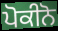
ਪੋਕੀਨੋ